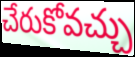
చేరుకోవచ్చు